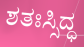
ಶತಃಸ್ಸಿದ್ಧ